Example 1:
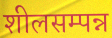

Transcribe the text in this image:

शीलसम्पन्न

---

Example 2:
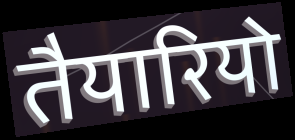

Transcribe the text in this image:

तैयारियो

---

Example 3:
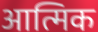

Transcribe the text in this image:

आत्मिक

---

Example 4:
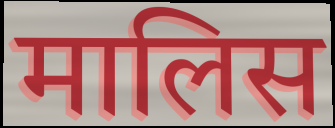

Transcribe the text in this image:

मालिस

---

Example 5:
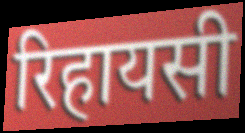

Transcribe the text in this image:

रिहायसी